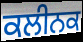
ਕਲੀਨਕ